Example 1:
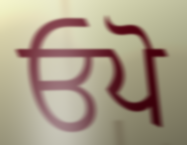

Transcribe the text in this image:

ਓਪੋ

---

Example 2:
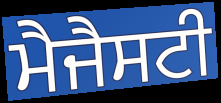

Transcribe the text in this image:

ਮੈਜੈਸਟੀ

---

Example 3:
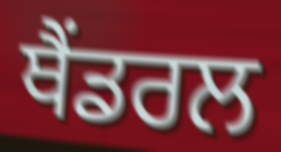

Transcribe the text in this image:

ਥੈਂਡਰਲ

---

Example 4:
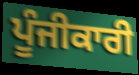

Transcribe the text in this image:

ਪੂੰਜੀਕਾਰੀ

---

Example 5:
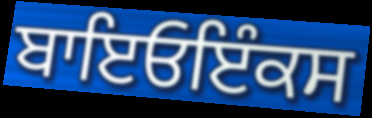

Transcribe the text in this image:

ਬਾਇਓਇੰਕਸ